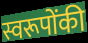
स्वरूपोंकी